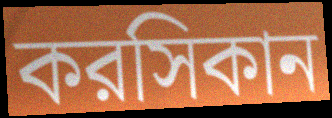
করসিকান